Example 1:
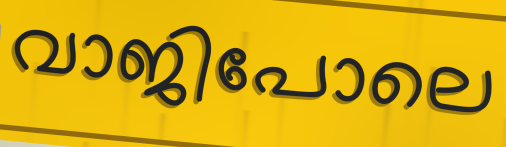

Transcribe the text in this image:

വാജിപോലെ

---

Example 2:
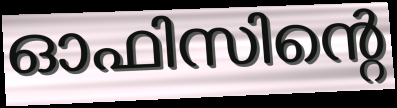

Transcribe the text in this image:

ഓഫിസിന്റെ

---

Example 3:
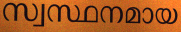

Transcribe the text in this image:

സ്വസ്ഥനമായ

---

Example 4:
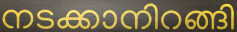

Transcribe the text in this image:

നടക്കാനിറങ്ങി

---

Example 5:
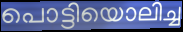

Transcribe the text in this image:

പൊട്ടിയൊലിച്ച